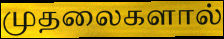
முதலைகளால்